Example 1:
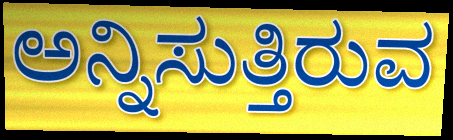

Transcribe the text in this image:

ಅನ್ನಿಸುತ್ತಿರುವ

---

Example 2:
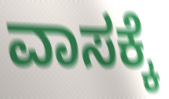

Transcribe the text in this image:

ವಾಸಕ್ಕೆ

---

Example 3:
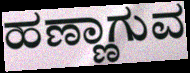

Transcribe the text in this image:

ಹಣ್ಣಾಗುವ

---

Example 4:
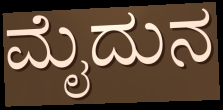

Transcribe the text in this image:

ಮೈದುನ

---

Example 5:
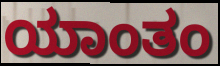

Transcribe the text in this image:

ಯಾಂತಂ